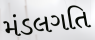
મંડલગતિ